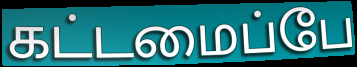
கட்டமைப்பே